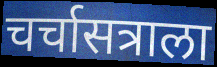
चर्चासत्राला